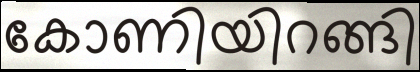
കോണിയിറങ്ങി